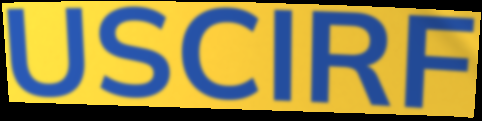
USCIRF